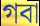
গবা